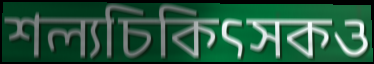
শল্যচিকিৎসকও